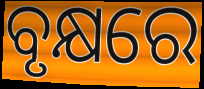
ବୃକ୍ଷରେ